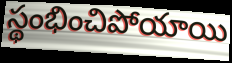
స్థంభించిపోయాయి